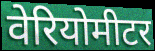
वेरियोमीटर